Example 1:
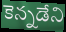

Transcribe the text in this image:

కెన్నడేని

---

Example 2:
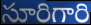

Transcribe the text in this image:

సూరిగారి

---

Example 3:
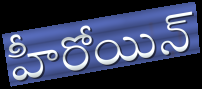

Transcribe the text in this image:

హీరోయిన్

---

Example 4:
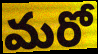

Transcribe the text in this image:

మరో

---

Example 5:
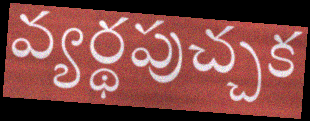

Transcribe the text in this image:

వ్యర్థపుచ్చక